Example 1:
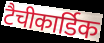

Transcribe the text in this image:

टैचीकार्डिक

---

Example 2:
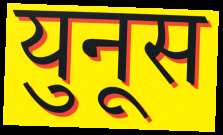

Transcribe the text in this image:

युनूस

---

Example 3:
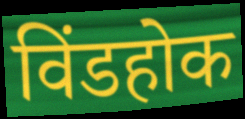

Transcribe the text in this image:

विंडहोक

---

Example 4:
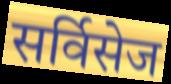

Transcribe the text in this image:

सर्विसेज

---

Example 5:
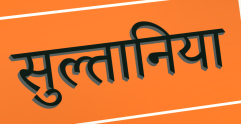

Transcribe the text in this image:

सुल्तानिया